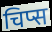
चिप्स